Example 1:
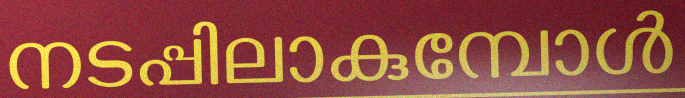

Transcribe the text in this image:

നടപ്പിലാകുമ്പോൾ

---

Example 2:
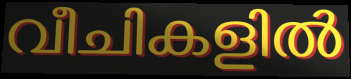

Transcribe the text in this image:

വീചികളിൽ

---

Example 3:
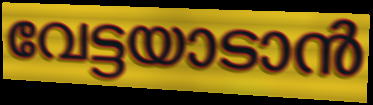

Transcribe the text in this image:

വേട്ടയാടാൻ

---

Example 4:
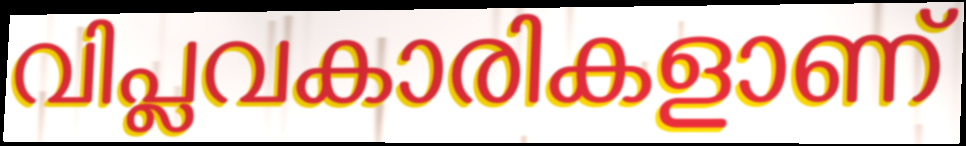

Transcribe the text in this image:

വിപ്ലവകാരികളാണ്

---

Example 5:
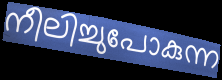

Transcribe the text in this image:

നീലിച്ചുപോകുന്ന